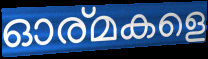
ഓര്മകളെ